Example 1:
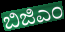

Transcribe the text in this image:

ಬಿಜಿಎಂ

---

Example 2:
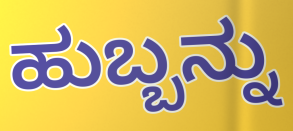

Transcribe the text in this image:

ಹುಬ್ಬನ್ನು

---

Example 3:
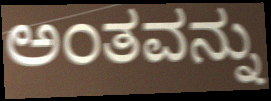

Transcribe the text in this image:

ಅಂತವನ್ನು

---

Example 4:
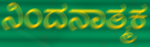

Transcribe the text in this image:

ನಿಂದನಾತ್ಮಕ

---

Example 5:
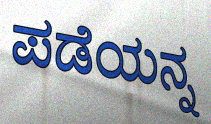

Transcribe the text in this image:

ಪಡೆಯನ್ನ